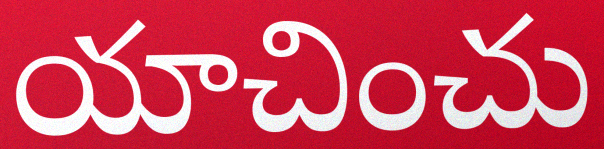
యాచించు